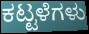
ಕಟ್ಟಳೆಗಳು